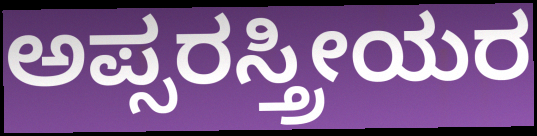
ಅಪ್ಸರಸ್ತ್ರೀಯರ